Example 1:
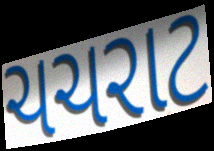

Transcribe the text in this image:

ચચરાટ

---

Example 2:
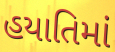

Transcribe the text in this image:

હયાતિમાં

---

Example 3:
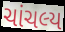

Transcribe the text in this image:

ચાંચલ્ય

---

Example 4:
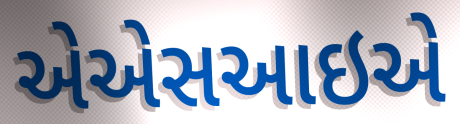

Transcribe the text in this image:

એએસઆઇએ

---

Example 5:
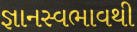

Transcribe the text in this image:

જ્ઞાનસ્વભાવથી